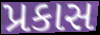
પ્રકાસ